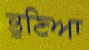
ਭੁਣਿਆ